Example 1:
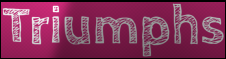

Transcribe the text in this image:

Triumphs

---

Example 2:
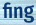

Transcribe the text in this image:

fing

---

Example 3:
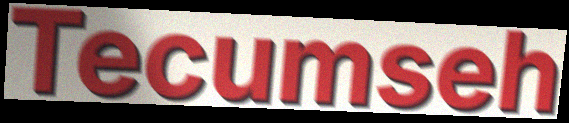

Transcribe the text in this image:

Tecumseh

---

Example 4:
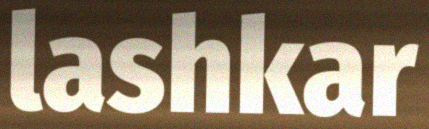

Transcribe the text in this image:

lashkar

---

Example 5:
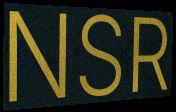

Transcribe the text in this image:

NSR